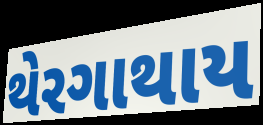
થેરગાથાય